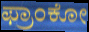
ಫ್ರಾಂಕೋ